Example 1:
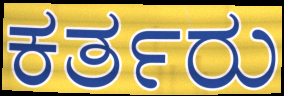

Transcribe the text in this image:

ಕರ್ತರು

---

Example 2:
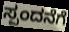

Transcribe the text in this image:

ಸ್ಪಂದನೆಗೆ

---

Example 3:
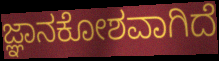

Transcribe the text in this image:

ಜ್ಞಾನಕೋಶವಾಗಿದೆ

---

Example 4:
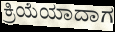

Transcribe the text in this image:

ಕ್ರಿಯೆಯಾದಾಗ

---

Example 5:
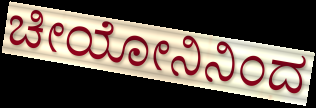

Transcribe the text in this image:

ಚೀಯೋನಿನಿಂದ